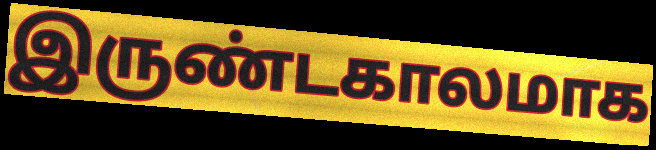
இருண்டகாலமாக